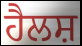
ਹੈਲਸ਼